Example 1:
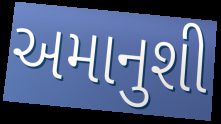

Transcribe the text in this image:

અમાનુશી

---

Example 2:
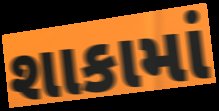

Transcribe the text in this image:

શાકામાં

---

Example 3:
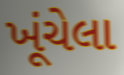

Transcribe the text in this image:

ખૂંચેલા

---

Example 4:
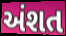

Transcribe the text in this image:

અંશત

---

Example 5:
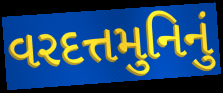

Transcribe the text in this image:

વરદત્તમુનિનું